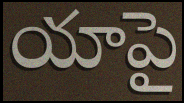
యాపై